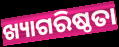
ଖ୍ୟାଗରିଷ୍ଠତା